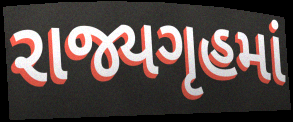
રાજ્યગૃહમાં